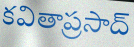
కవితాప్రసాద్